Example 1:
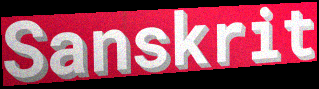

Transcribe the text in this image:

Sanskrit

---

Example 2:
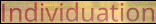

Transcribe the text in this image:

Individuation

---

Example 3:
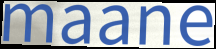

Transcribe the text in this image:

maane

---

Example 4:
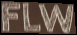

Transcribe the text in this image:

FLW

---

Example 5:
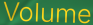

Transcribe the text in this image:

Volume